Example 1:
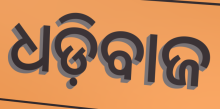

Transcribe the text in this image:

ଧଡ଼ିବାଜ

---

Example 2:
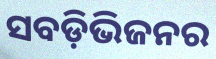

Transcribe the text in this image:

ସବଡ଼ିଭିଜନର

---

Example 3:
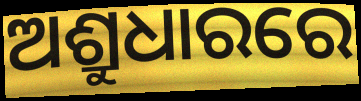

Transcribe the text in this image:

ଅଶ୍ରୁଧାରରେ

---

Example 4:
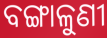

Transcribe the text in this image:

ବଙ୍ଗାଳୁଣୀ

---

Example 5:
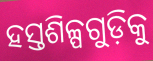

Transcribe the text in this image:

ହସ୍ତଶିଳ୍ପଗୁଡ଼ିକୁ